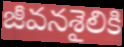
జీవనశైలికి